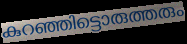
കുറഞ്ഞിട്ടൊരുത്തരും